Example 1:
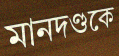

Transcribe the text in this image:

মানদণ্ডকে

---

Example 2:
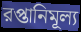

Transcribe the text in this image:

রপ্তানিমূল্য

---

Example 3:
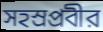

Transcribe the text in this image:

সহস্রপ্রবীর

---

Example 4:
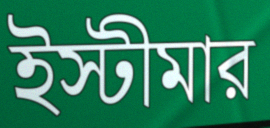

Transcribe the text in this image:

ইস্টীমার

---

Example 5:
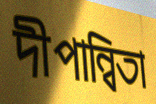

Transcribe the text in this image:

দীপান্বিতা